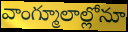
వాంగ్మూలాల్లోనూ